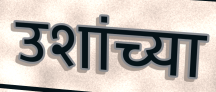
उशांच्या